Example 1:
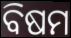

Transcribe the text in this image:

ବିଷମ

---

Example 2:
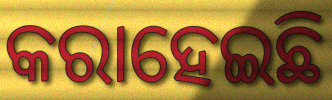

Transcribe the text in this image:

କରାହେଇଛି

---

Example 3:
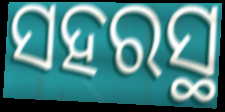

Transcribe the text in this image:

ସହରସ୍ଥ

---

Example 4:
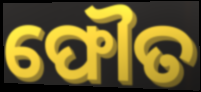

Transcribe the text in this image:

ଫୌତ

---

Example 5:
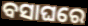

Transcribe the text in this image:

ବସାଘରେ